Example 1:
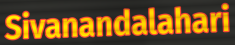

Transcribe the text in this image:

Sivanandalahari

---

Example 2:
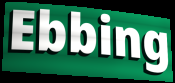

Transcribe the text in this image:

Ebbing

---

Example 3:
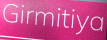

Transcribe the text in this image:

Girmitiya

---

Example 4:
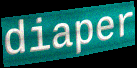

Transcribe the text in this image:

diaper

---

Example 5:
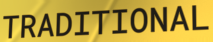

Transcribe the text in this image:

TRADITIONAL